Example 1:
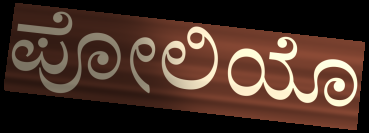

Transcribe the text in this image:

ಪೋಲಿಯೊ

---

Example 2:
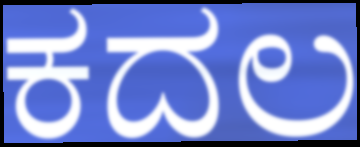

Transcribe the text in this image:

ಕದಲ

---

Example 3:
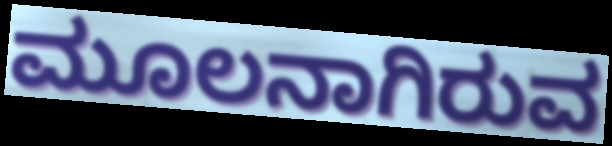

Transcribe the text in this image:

ಮೂಲನಾಗಿರುವ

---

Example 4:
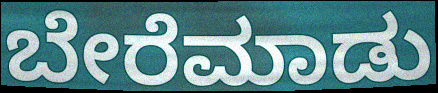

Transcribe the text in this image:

ಬೇರೆಮಾಡು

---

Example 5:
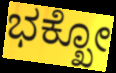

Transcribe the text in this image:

ಭಕ್ಖೋ